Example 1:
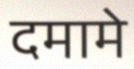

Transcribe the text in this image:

दमामे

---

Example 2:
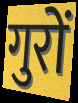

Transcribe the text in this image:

गुरों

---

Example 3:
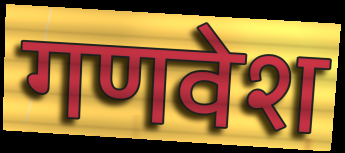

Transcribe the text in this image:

गणवेश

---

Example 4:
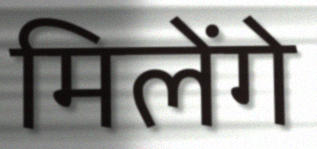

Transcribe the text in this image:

मिलेंगे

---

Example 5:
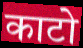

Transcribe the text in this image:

काटो